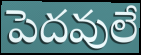
పెదవులే